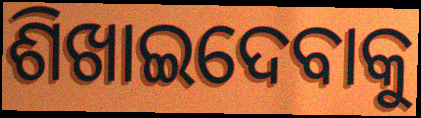
ଶିଖାଇଦେବାକୁ